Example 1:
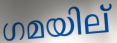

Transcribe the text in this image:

ഗമയില്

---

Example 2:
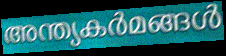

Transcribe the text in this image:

അന്ത്യകർമങ്ങൾ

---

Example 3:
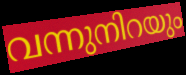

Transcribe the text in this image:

വന്നുനിറയും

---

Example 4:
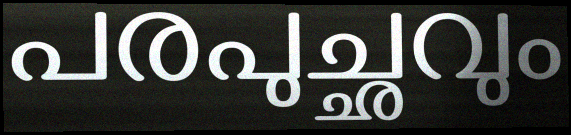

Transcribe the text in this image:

പരപുച്ഛവും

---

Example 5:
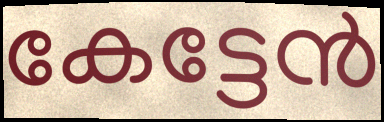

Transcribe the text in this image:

കേട്ടേൻ